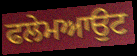
ਫਲੇਮਆਉਟ